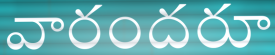
వారందరూ